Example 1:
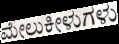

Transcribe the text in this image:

ಮೇಲುಕೀಳುಗಳು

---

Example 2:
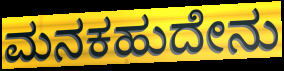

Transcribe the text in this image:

ಮನಕಹುದೇನು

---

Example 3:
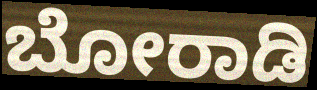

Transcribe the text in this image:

ಬೋರಾಡಿ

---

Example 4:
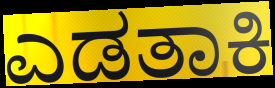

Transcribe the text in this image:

ಎಡತಾಕಿ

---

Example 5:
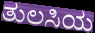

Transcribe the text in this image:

ತುಲಸಿಯ